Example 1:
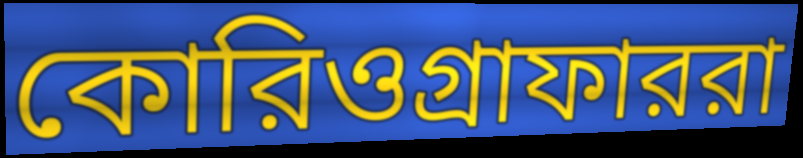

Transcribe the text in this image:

কোরিওগ্রাফাররা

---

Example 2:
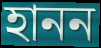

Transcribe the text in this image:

হানন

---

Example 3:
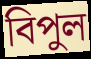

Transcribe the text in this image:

বিপুল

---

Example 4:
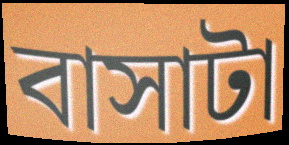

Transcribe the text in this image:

বাসাটা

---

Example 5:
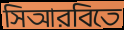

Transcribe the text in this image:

সিআরবিতে